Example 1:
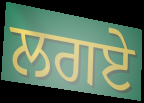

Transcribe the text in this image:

ਲਗਏ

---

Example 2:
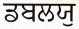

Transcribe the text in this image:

ਡਬਲਯੁ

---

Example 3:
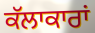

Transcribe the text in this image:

ਕੱਲਾਕਾਰਾਂ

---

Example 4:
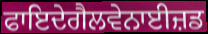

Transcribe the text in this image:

ਫਾਇਦੇਗੈਲਵੇਨਾਈਜ਼ਡ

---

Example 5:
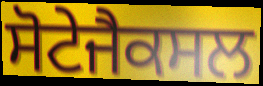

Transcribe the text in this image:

ਸੋਟੇਜੈਕਸਲ